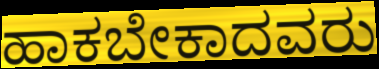
ಹಾಕಬೇಕಾದವರು